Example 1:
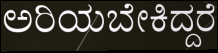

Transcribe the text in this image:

ಅರಿಯಬೇಕಿದ್ದರೆ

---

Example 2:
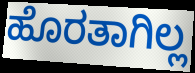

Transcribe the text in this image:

ಹೊರತಾಗಿಲ್ಲ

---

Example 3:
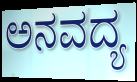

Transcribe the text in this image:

ಅನವದ್ಯ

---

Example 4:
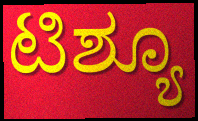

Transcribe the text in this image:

ಟಿಶ್ಯೂ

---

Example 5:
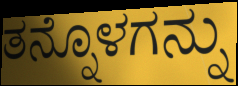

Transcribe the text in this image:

ತನ್ನೊಳಗನ್ನು